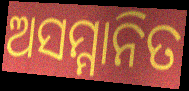
ଅସମ୍ମାନିତ